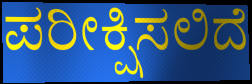
ಪರೀಕ್ಷಿಸಲಿದೆ